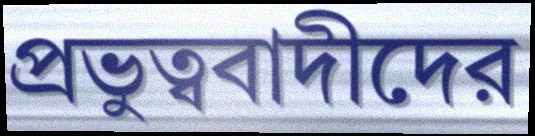
প্রভুত্ববাদীদের